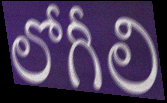
లోగీలి